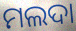
ମଲଦା